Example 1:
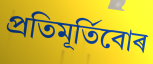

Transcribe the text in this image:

প্ৰতিমূৰ্তিবোৰ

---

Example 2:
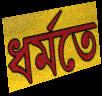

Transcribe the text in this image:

ধৰ্মতে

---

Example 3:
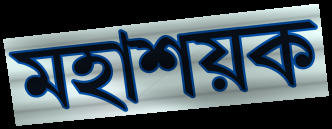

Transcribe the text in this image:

মহাশয়ক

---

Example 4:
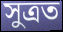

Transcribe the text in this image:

সুত্ৰত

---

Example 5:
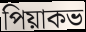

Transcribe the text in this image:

পিয়াকভ